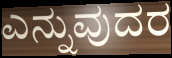
ಎನ್ನುವುದರ